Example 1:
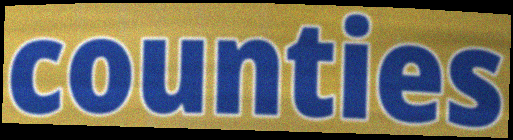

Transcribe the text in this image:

counties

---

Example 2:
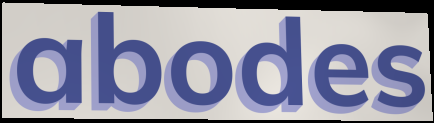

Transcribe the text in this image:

abodes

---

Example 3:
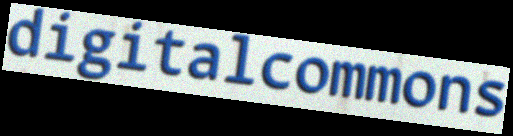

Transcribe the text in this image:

digitalcommons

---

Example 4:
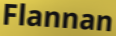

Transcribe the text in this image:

Flannan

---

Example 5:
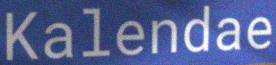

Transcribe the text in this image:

Kalendae